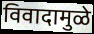
विवादामुळे